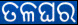
ତଳଘର